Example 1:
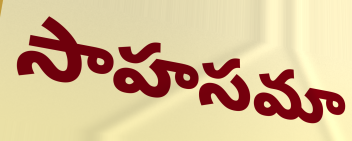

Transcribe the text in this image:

సాహసమా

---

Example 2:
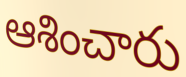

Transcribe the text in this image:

ఆశించారు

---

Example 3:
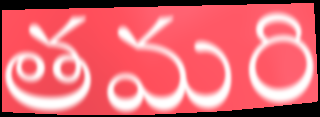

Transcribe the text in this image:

తమరి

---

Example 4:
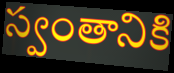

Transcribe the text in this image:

స్వంతానికి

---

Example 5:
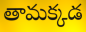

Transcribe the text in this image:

తామక్కడ